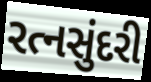
રત્નસુંદરી